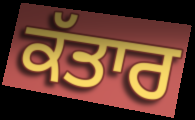
ਕੱਤਾਰ